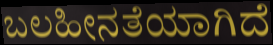
ಬಲಹೀನತೆಯಾಗಿದೆ